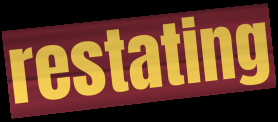
restating